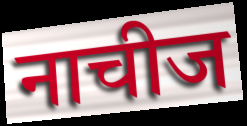
नाचीज